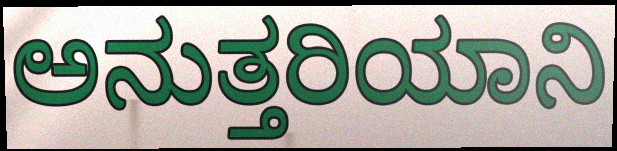
ಅನುತ್ತರಿಯಾನಿ